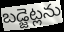
బడ్జెట్లను